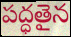
పద్ధతైన